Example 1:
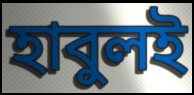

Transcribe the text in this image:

হাবুলই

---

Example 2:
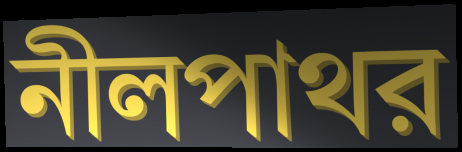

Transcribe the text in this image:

নীলপাথর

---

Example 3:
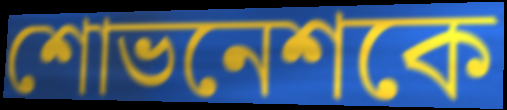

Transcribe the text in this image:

শোভনেশকে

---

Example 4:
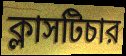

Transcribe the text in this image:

ক্লাসটিচার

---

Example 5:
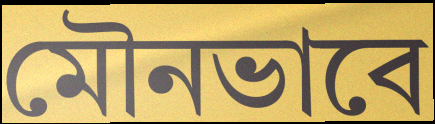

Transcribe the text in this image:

মৌনভাবে